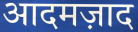
आदमज़ाद